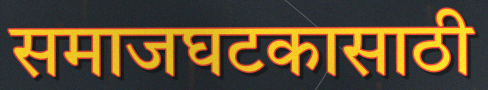
समाजघटकासाठी